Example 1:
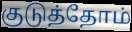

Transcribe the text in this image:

குடுத்தோம்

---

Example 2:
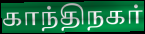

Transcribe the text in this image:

காந்திநகர்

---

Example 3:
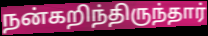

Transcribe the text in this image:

நன்கறிந்திருந்தார்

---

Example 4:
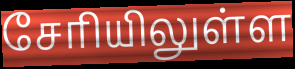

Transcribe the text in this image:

சேரியிலுள்ள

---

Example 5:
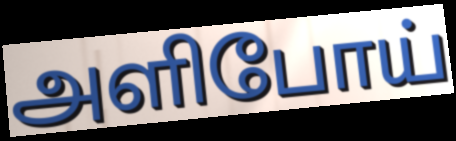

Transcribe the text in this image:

அளிபோய்